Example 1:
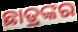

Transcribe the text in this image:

ଛାତ୍ରଙ୍କର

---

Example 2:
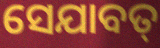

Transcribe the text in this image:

ସେଯାବତ୍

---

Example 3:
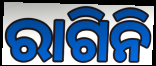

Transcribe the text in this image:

ରାଗିନି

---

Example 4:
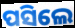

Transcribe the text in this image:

ପସିଲେ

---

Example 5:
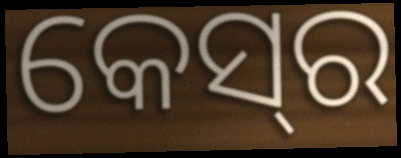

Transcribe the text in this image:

କେସ୍‌ର